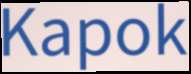
Kapok